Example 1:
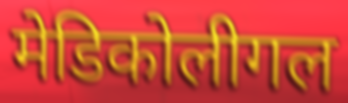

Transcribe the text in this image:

मेडिकोलीगल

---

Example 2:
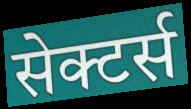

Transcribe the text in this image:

सेक्‍टर्स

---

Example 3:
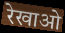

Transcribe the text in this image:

रेखाओ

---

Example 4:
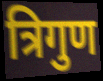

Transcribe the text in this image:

त्रिगुण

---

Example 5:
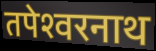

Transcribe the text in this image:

तपेश्वरनाथ